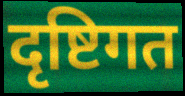
दृष्टिगत